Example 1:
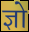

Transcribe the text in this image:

ज्ञो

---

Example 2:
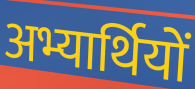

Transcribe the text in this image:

अभ्‍यार्थियों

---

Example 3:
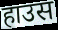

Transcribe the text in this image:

हाउस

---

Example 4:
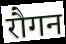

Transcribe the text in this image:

रौगन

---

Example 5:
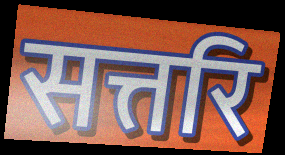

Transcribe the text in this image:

सत्तरि